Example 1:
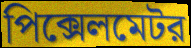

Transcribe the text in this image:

পিক্সেলমেটর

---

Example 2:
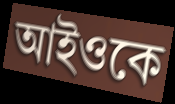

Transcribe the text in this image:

আইওকে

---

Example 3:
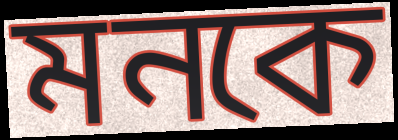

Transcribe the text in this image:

মনকে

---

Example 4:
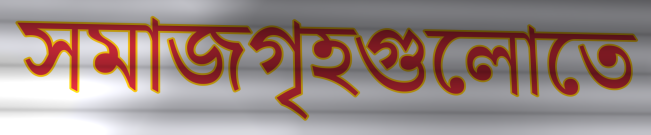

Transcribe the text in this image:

সমাজগৃহগুলোতে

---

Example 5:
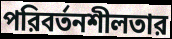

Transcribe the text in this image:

পরিবর্তনশীলতার